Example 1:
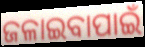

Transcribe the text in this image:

ଜଳାଇବାପାଇଁ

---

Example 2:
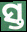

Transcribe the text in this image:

ସ୍ତ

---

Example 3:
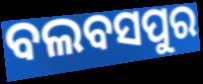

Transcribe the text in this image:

ବଲବସପୁର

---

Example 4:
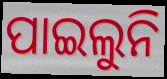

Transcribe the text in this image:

ପାଇଲୁନି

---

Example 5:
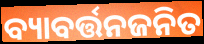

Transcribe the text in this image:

ବ୍ୟାବର୍ତ୍ତନଜନିତ